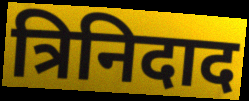
त्रिनिदाद